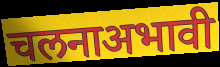
चलनाअभावी